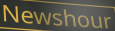
Newshour